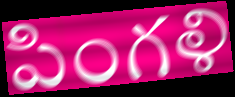
పింగళి